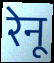
रेनू